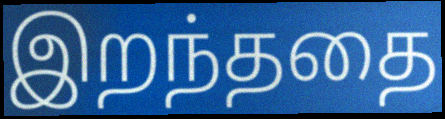
இறந்ததை